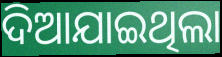
ଦିଆଯାଇଥିଲା